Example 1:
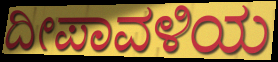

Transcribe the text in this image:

ದೀಪಾವಳಿಯ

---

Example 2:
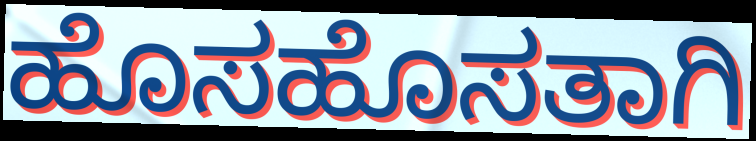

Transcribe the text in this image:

ಹೊಸಹೊಸತಾಗಿ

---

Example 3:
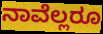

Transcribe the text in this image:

ನಾವೆಲ್ಲರೂ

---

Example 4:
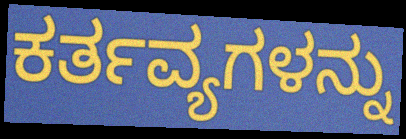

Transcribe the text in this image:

ಕರ್ತವ್ಯಗಳನ್ನು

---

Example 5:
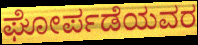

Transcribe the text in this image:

ಘೋರ್ಪಡೆಯವರ